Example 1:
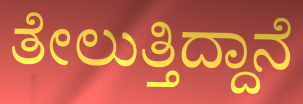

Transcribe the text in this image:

ತೇಲುತ್ತಿದ್ದಾನೆ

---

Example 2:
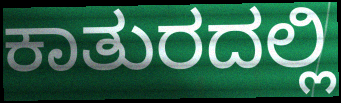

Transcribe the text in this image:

ಕಾತುರದಲ್ಲಿ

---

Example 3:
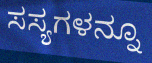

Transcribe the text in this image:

ಸಸ್ಯಗಳನ್ನೂ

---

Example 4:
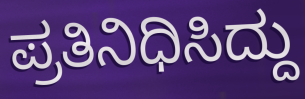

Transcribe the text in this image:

ಪ್ರತಿನಿಧಿಸಿದ್ದು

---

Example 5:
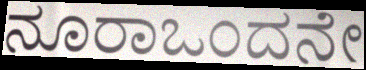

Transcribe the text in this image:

ನೂರಾಒಂದನೇ